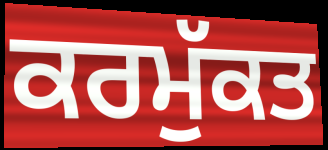
ਕਰਮੁੱਕਤ